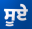
ਸੂਏ